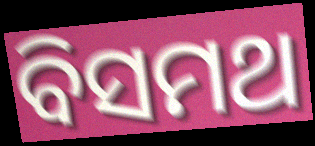
ବିସମଥ